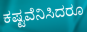
ಕಷ್ಟವೆನಿಸಿದರೂ